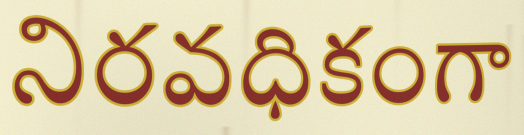
నిరవధికంగా